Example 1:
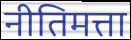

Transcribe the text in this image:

नीतिमत्ता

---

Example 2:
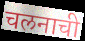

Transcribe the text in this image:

चलनाची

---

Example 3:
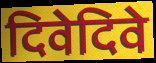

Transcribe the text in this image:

दिवेदिवे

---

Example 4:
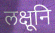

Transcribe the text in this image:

लक्षूनि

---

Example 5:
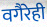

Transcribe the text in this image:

वगैरेही